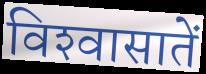
विश्वासातें